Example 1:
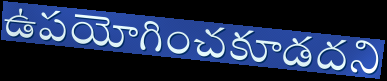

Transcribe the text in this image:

ఉపయోగించకూడదని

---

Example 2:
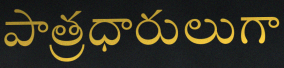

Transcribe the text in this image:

పాత్రధారులుగా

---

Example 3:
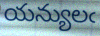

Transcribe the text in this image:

యన్యులఁ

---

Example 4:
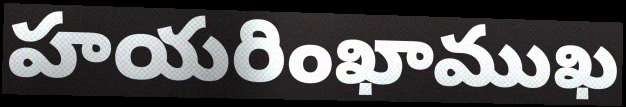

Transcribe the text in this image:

హయరింఖాముఖ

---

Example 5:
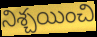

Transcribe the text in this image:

నిశ్చయించి